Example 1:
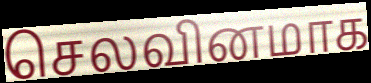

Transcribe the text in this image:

செலவினமாக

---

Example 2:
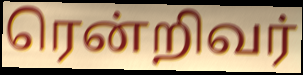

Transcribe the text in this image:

ரென்றிவர்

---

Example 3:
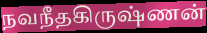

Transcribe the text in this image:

நவநீதகிருஷ்ணன்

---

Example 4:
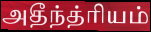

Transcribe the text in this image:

அதீந்த்ரியம்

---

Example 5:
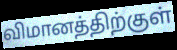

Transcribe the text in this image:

விமானத்திற்குள்